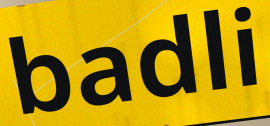
badli